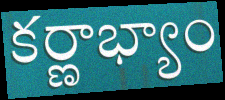
కర్ణాభ్యాం